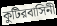
কুটিরবাসিনী